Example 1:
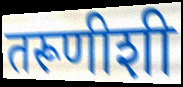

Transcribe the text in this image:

तरूणीशी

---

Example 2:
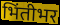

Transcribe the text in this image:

भिंतीभर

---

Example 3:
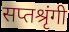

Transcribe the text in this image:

सप्तश्रृंगी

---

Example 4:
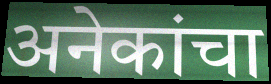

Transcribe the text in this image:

अनेकांचा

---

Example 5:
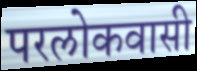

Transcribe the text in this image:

परलोकवासी